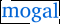
mogal